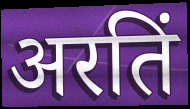
अरतिं